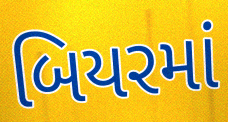
બિયરમાં